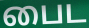
பைட